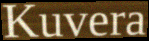
Kuvera